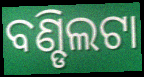
ବଣ୍ଡିଲଟା